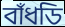
বাঁধডি